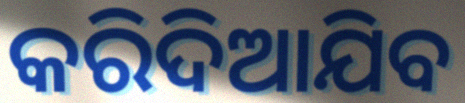
କରିଦିଆଯିବ